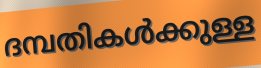
ദമ്പതികൾക്കുള്ള